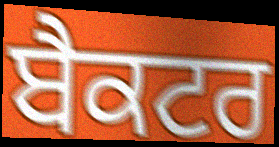
ਬੈਕਟਰ